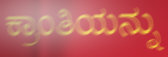
ಕ್ರಾಂತಿಯನ್ನು